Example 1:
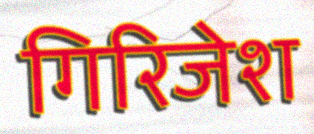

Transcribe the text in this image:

गिरिजेश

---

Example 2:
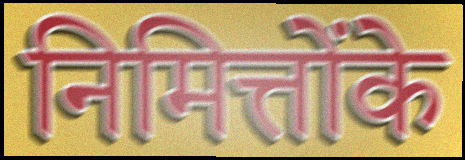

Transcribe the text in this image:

निमित्तोंके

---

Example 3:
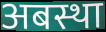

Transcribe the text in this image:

अबस्था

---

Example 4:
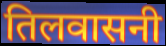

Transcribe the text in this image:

तिलवासनी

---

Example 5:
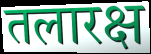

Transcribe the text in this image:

तलारक्ष